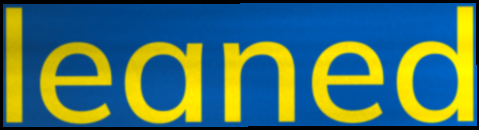
leaned